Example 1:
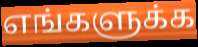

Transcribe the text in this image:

எங்களுக்க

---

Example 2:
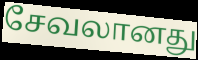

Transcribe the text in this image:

சேவலானது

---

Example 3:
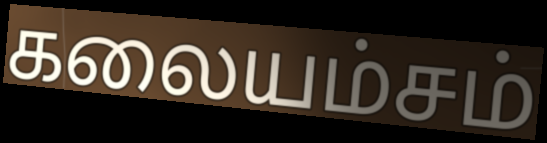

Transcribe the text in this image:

கலையம்சம்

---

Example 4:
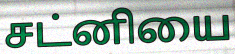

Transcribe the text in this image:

சட்னியை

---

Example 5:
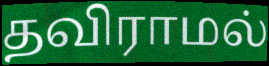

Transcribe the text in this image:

தவிராமல்